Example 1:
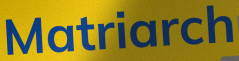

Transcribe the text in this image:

Matriarch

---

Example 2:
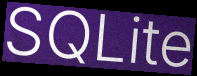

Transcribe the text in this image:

SQLite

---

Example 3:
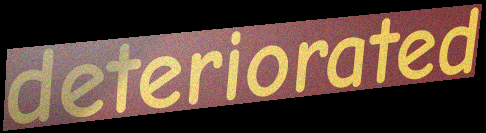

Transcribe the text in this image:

deteriorated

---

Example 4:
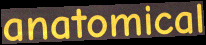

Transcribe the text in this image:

anatomical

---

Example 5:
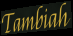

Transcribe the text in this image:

Tambiah